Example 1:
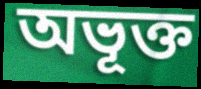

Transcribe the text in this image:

অভূক্ত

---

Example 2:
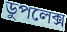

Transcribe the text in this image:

ডুপলেক্স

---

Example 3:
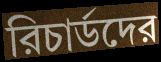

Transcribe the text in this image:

রিচার্ডদের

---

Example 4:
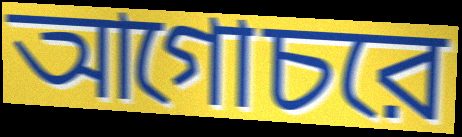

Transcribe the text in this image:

আগোচরে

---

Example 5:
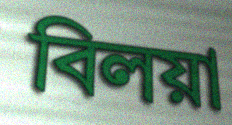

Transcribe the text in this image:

বিলয়া